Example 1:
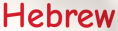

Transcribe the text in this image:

Hebrew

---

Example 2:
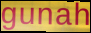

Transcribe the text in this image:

gunah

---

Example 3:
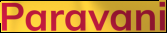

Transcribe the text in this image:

Paravani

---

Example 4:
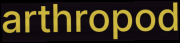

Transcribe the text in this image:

arthropod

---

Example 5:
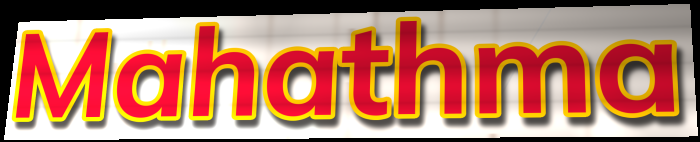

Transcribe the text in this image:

Mahathma